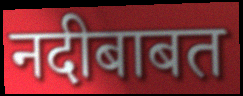
नदीबाबत